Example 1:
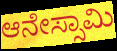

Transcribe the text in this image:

ಆನೇಸ್ಸಾಮಿ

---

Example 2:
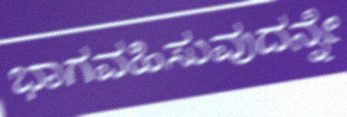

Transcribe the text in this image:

ಭಾಗವಹಿಸುವುದನ್ನೇ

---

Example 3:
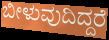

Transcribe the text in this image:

ಬೀಳುವುದಿದ್ದರೆ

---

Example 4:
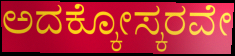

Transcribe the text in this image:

ಅದಕ್ಕೋಸ್ಕರವೇ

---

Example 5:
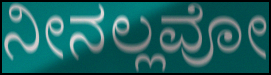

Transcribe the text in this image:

ನೀನಲ್ಲವೋ